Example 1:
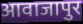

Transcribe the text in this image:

आवाजापुर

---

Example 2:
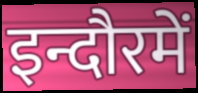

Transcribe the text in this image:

इन्दौरमें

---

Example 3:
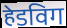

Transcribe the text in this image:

हेडविग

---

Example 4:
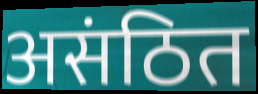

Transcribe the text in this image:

असंठित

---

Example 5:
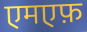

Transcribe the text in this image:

एमएफ़